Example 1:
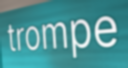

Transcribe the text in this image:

trompe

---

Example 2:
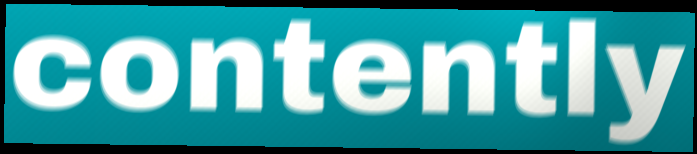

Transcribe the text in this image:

contently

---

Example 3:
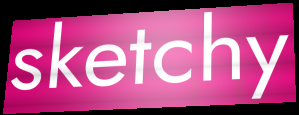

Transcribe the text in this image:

sketchy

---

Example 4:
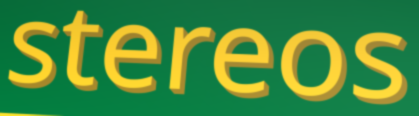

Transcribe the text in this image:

stereos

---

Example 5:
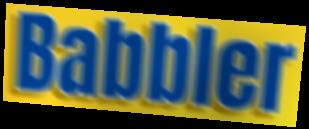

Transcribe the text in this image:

Babbler